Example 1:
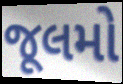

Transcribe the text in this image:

જૂલમો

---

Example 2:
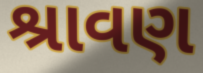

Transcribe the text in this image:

શ્રાવણ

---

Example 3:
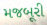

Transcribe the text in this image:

મજબૂરી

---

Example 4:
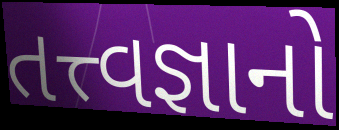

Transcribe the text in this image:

તત્ત્વજ્ઞાનો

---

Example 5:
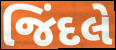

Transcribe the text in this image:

જિંદલે